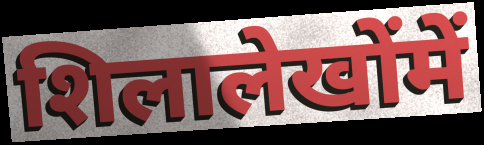
शिलालेखोंमें